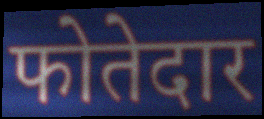
फोतेदार